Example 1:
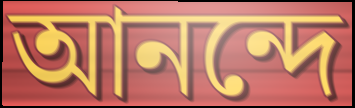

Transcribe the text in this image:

আনন্দে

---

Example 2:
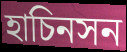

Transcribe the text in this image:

হাচিনসন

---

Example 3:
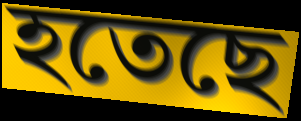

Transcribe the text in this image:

হতেছে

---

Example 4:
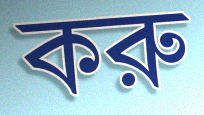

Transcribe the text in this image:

করু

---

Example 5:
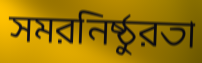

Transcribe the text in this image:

সমরনিষ্ঠুরতা